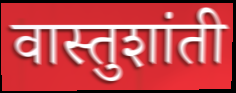
वास्तुशांती